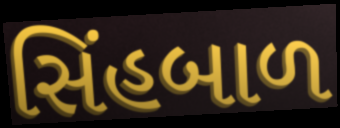
સિંહબાળ